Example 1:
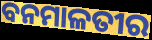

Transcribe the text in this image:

ବନମାଳତୀର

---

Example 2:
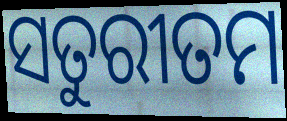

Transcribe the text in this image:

ସତୁରୀତମ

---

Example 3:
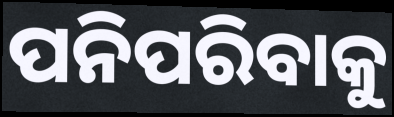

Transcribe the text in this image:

ପନିପରିବାକୁ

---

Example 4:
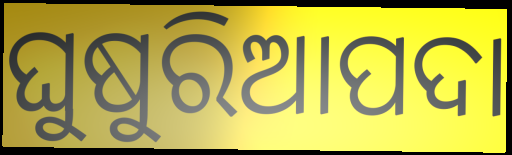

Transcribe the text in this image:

ଘୁଷୁରିଆପଦା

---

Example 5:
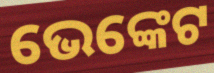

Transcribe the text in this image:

ଭେଙ୍କେଟ